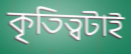
কৃতিত্বটাই